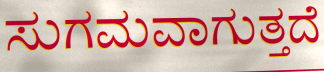
ಸುಗಮವಾಗುತ್ತದೆ